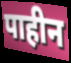
पाहीन